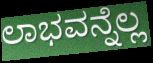
ಲಾಭವನ್ನೆಲ್ಲ